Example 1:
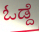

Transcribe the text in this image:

ಓಡ್ದೆ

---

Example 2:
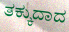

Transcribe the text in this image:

ತಕ್ಕುದಾದ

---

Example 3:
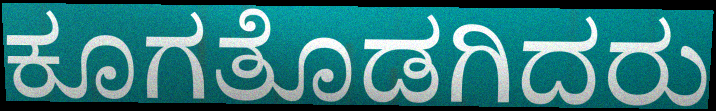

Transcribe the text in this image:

ಕೂಗತೊಡಗಿದರು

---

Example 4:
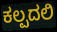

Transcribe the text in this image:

ಕಲ್ಪದಲಿ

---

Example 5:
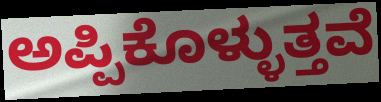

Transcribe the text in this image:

ಅಪ್ಪಿಕೊಳ್ಳುತ್ತವೆ